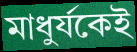
মাধুর্যকেই